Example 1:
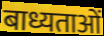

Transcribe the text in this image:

बाध्यताओं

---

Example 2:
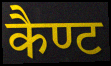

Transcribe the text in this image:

कैण्ट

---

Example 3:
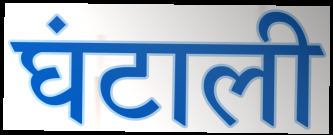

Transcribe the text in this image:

घंटाली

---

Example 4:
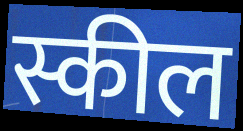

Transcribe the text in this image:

स्‍कील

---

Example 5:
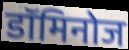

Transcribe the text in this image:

डॉमिनोज